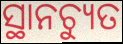
ସ୍ଥାନଚ୍ୟୁତ